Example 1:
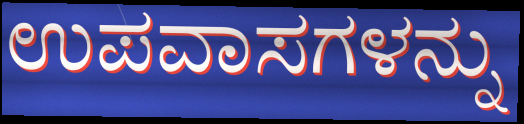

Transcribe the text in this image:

ಉಪವಾಸಗಳನ್ನು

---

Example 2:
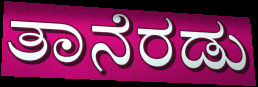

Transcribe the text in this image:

ತಾನೆರಡು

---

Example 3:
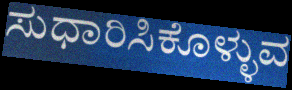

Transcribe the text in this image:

ಸುಧಾರಿಸಿಕೊಳ್ಳುವ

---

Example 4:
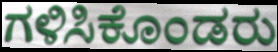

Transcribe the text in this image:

ಗಳಿಸಿಕೊಂಡರು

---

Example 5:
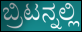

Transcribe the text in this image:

ಬ್ರಿಟನ್ನಲ್ಲಿ